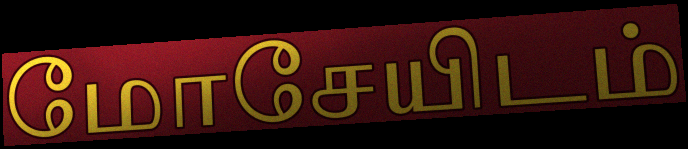
மோசேயிடம்